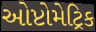
ઓપ્ટોમેટ્રિક